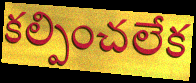
కల్పించలేక